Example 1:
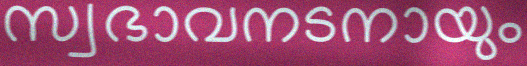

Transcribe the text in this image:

സ്വഭാവനടനായും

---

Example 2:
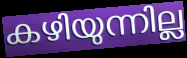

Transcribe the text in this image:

കഴിയുന്നില്ല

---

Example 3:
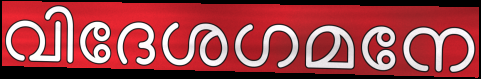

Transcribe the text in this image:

വിദേശഗമനേ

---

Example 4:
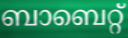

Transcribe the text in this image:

ബാബെറ്റ്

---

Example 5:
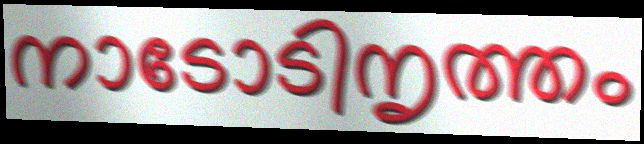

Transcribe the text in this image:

നാടോടിനൃത്തം